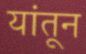
यांतून